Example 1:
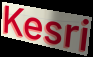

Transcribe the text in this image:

Kesri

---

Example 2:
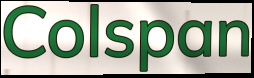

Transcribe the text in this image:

Colspan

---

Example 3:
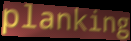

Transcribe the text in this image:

planking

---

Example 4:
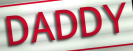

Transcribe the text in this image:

DADDY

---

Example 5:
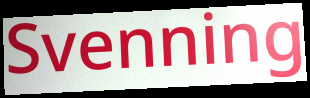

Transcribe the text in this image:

Svenning